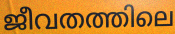
ജീവതത്തിലെ